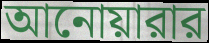
আনোয়ারার